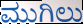
ಮುಗಿಲು